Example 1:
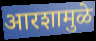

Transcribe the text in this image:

आरशामुळे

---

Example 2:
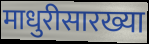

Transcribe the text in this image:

माधुरीसारख्या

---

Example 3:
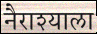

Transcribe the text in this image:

नैराश्याला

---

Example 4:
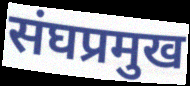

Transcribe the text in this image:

संघप्रमुख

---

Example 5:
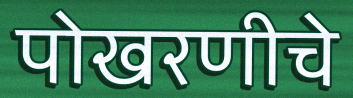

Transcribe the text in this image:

पोखरणीचे